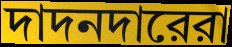
দাদনদারেরা